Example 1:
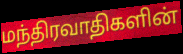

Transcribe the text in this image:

மந்திரவாதிகளின்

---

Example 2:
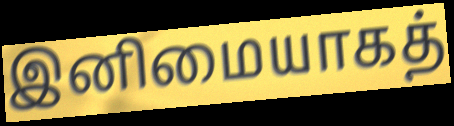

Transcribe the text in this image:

இனிமையாகத்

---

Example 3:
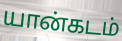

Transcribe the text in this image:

யான்கடம்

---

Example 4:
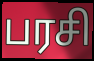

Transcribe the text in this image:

பரசி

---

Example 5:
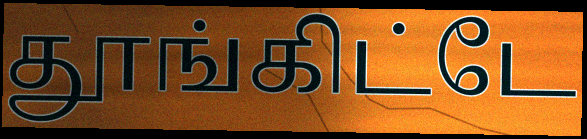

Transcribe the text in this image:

தூங்கிட்டே